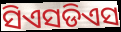
ସିଏସଡିଏସ